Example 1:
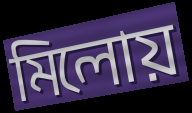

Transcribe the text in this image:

মিলোয়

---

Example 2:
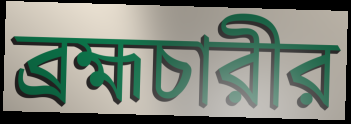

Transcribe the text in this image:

ব্রহ্মচারীর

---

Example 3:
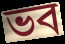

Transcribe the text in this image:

ভব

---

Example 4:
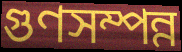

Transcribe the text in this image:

গুণসম্পন্ন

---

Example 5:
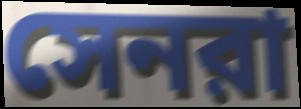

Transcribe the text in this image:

সেনরা